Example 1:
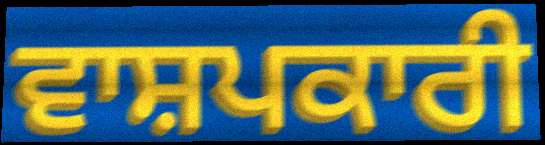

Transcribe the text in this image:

ਵਾਸ਼ਪਕਾਰੀ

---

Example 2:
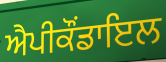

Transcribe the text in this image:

ਐਪੀਕੌਂਡਾਇਲ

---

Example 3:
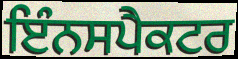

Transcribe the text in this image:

ਇੰਨਸਪੈਕਟਰ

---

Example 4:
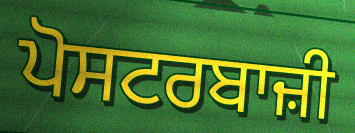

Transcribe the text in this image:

ਪੋਸਟਰਬਾਜ਼ੀ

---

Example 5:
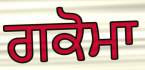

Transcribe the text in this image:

ਗਕੋਮਾ